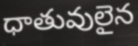
ధాతువులైన